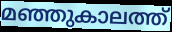
മഞ്ഞുകാലത്ത്